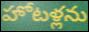
హోటళ్లను